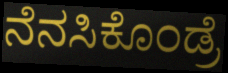
ನೆನಸಿಕೊಂಡ್ರೆ